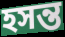
হসন্ত